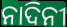
ନାଦିନୀ